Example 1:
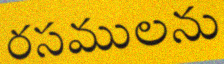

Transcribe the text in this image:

రసములను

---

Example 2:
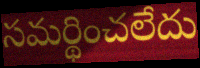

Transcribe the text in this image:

సమర్థించలేదు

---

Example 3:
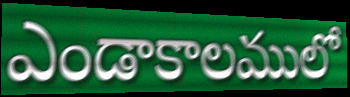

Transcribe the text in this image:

ఎండాకాలములో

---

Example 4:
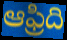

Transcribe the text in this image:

ఆఫ్రిది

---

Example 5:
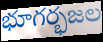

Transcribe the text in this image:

భూగర్భజల